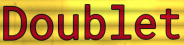
Doublet